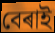
বেৰাই